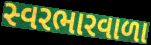
સ્વરભારવાળા